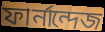
ফার্নান্দেজ